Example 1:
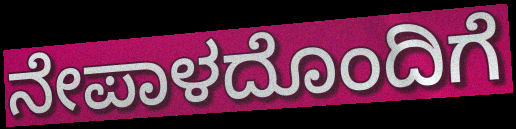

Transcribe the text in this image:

ನೇಪಾಳದೊಂದಿಗೆ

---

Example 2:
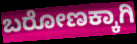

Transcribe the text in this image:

ಬರೋಣಕ್ಕಾಗಿ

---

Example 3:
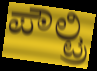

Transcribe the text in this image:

ಪೌಲ್ಟ್ರಿ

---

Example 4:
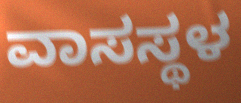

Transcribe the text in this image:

ವಾಸಸ್ಥಳ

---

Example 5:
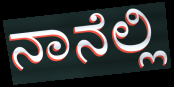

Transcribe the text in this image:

ನಾನೆಲ್ಲಿ